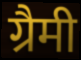
ग्रैमी